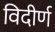
विदीर्ण